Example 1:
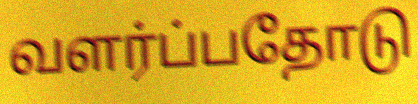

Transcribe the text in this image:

வளர்ப்பதோடு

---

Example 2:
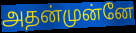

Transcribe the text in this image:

அதன்முன்னே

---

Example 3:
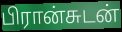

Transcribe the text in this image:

பிரான்சுடன்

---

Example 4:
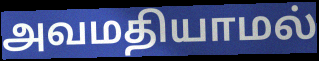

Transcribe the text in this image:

அவமதியாமல்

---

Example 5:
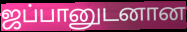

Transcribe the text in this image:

ஜப்பானுடனான